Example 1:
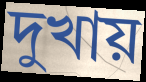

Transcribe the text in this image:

দুখায়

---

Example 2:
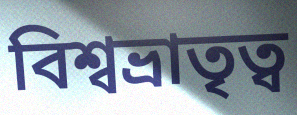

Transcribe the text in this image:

বিশ্বভ্রাতৃত্ব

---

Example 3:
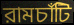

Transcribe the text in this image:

রামচাঁটি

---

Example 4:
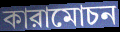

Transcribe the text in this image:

কারামোচন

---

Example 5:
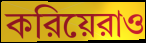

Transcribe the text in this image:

করিয়েরাও